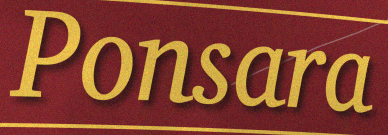
Ponsara